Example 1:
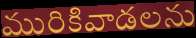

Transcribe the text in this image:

మురికివాడలను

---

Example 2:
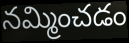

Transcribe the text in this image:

నమ్మించడం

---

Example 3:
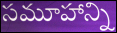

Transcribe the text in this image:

సమూహాన్ని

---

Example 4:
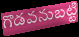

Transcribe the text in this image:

గొడవనుబట్టి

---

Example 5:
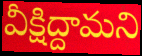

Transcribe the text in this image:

వీక్షిద్దామని